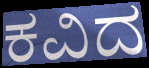
ಕವಿದ